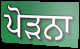
ਪੋੜਨਾ